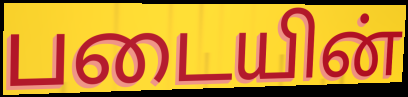
படையின்